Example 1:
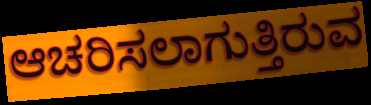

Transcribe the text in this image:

ಆಚರಿಸಲಾಗುತ್ತಿರುವ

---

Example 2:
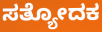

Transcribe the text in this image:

ಸತ್ಯೋದಕ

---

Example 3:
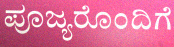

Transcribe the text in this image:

ಪೂಜ್ಯರೊಂದಿಗೆ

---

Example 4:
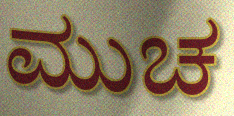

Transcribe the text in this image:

ಮುಚ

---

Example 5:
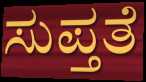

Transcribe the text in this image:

ಸುಪ್ತತೆ